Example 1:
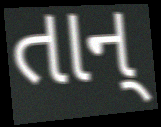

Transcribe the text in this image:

તાન્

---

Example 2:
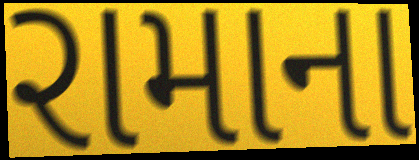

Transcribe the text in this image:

રામાના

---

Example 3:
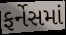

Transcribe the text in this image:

ફર્નેસમાં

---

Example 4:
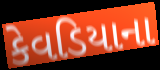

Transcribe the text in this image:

કેવડિયાના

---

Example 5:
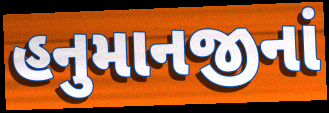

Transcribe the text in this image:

હનુમાનજીનાં